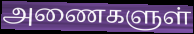
அணைகளுள்